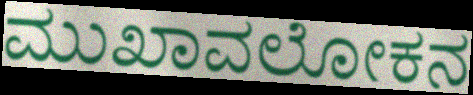
ಮುಖಾವಲೋಕನ